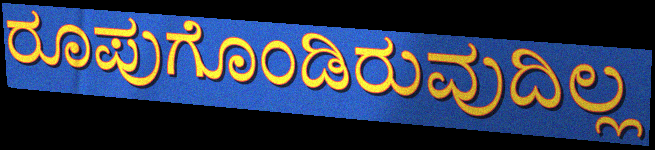
ರೂಪುಗೊಂಡಿರುವುದಿಲ್ಲ